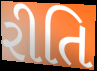
રીતિ